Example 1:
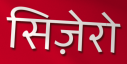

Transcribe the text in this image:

सिज़ेरो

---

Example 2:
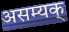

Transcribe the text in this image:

असम्यक्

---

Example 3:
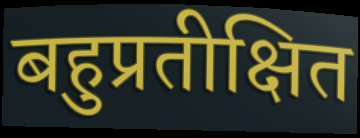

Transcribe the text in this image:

बहुप्रतीक्षित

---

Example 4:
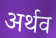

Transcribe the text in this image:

अर्थव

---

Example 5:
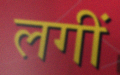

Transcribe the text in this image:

लगीं